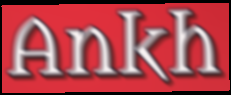
Ankh